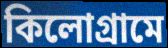
কিলোগ্রামে